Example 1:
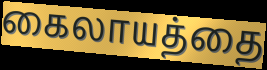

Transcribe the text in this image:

கைலாயத்தை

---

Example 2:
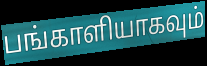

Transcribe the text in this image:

பங்காளியாகவும்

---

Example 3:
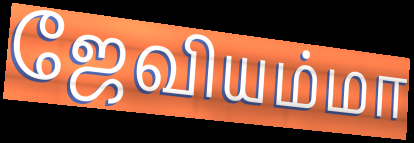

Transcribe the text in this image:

ஜேவியம்மா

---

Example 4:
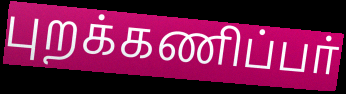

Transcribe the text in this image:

புறக்கணிப்பர்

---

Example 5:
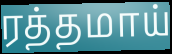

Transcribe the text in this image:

ரத்தமாய்